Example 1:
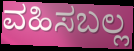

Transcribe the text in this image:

ವಹಿಸಬಲ್ಲ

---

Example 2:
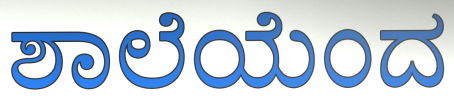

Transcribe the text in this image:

ಶಾಲೆಯೆಂದ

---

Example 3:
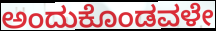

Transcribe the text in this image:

ಅಂದುಕೊಂಡವಳೇ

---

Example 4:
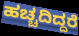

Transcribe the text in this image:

ಹಚ್ಚದಿದ್ದರೆ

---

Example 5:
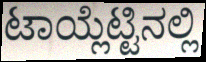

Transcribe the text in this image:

ಟಾಯ್ಲೆಟ್ಟಿನಲ್ಲಿ